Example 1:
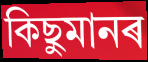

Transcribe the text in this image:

কিছুমানৰ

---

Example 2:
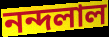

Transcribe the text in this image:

নন্দলাল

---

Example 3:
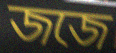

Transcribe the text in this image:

জজে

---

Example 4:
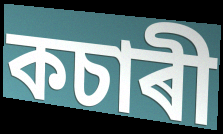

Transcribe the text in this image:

কচাৰী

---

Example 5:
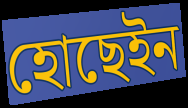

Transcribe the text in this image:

হোছেইন